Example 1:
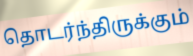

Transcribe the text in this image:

தொடர்ந்திருக்கும்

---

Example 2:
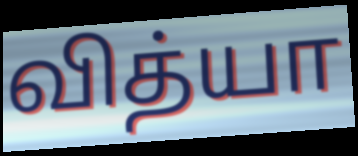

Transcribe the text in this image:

வித்யா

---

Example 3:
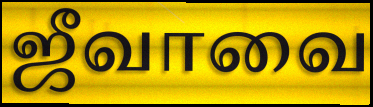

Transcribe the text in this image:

ஜீவாவை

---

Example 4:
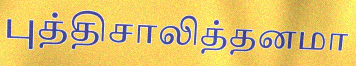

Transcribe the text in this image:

புத்திசாலித்தனமா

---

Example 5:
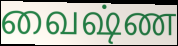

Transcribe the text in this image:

வைஷ்ண